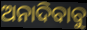
ଅନାଦିବାବୁ